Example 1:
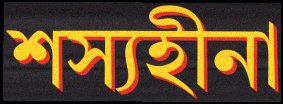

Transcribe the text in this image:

শস্যহীনা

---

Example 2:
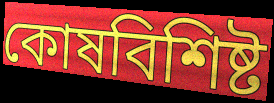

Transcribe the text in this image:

কোষবিশিষ্ট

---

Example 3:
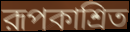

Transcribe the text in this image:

রূপকাশ্রিত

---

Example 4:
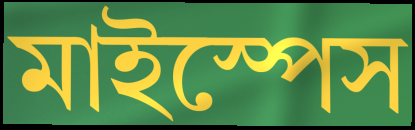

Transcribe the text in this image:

মাইস্পেস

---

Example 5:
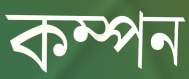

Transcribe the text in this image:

কম্পন